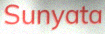
Sunyata